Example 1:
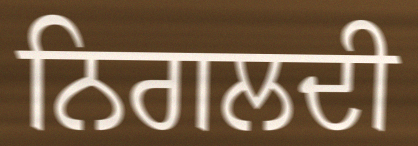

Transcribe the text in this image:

ਨਿਗਲਦੀ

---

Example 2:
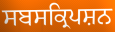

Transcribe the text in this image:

ਸਬਸਕ੍ਰਿਪਸ਼ਨ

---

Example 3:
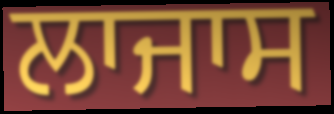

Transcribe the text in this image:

ਲਾਜਾਸ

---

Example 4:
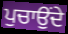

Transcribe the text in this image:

ਪੁਚਾਉਂਦੇ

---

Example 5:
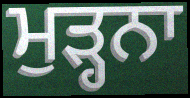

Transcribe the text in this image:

ਮੁੜ੍ਹਨਾ